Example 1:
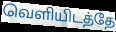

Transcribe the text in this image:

வெளியிடத்தே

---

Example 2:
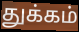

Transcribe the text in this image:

துக்கம்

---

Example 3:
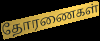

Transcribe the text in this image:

தோரணைகள்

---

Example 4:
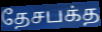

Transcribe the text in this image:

தேசபக்த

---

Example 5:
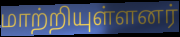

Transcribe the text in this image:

மாற்றியுள்ளனர்